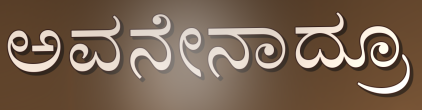
ಅವನೇನಾದ್ರೂ